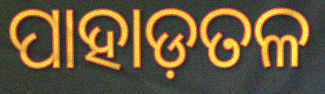
ପାହାଡ଼ତଳ